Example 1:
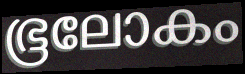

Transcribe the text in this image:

ഭൂലോകം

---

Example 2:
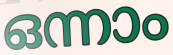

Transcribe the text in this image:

ഒന്നാം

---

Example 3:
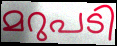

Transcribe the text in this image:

മറുപടി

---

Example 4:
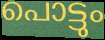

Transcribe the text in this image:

പൊട്ടും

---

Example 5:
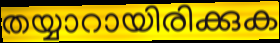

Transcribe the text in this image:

തയ്യാറായിരിക്കുക